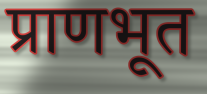
प्राणभूत